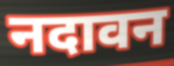
नदावन